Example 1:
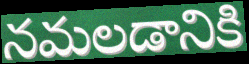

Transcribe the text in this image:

నమలడానికి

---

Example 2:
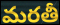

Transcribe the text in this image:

మరతీ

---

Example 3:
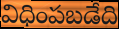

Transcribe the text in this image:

విధింపబడేది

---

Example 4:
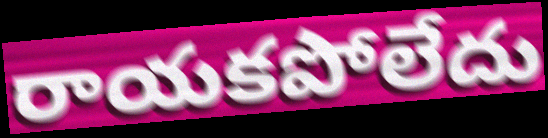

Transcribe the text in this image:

రాయకపోలేదు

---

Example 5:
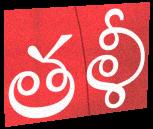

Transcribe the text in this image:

తళీ